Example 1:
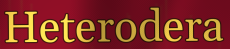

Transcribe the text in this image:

Heterodera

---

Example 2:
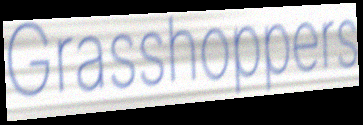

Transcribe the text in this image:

Grasshoppers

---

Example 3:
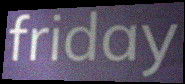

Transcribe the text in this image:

friday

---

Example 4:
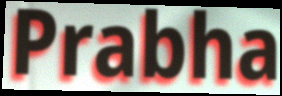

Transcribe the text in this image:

Prabha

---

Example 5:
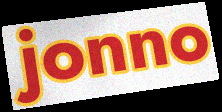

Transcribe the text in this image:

jonno